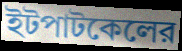
ইটপাটকেলের